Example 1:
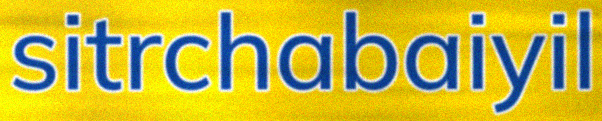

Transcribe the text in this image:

sitrchabaiyil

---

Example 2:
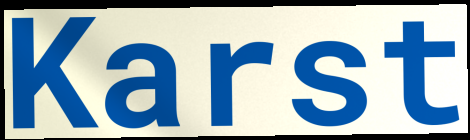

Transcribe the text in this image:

Karst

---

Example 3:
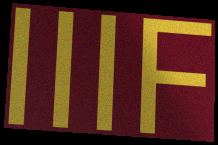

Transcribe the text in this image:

IIIF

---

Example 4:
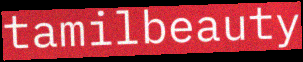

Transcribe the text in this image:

tamilbeauty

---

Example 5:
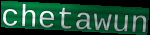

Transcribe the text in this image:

chetawun